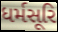
ધર્મસૂરિ